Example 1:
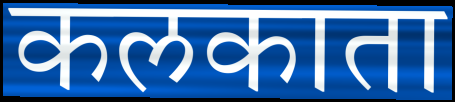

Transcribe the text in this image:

कलकाता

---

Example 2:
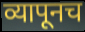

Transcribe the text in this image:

व्यापूनच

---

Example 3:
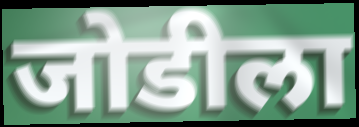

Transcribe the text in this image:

जोडीला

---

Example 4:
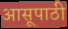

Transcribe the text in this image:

आसूपाठी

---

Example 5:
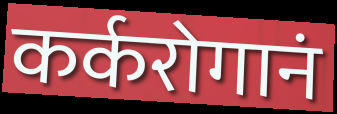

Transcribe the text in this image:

कर्करोगानं